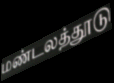
மண்டலத்தூடு